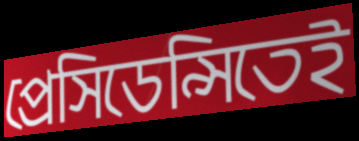
প্রেসিডেন্সিতেই